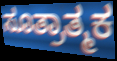
ಸೂತ್ರಾತ್ಮಕ